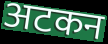
अटकन